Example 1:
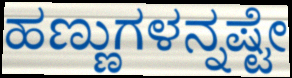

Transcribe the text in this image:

ಹಣ್ಣುಗಳನ್ನಷ್ಟೇ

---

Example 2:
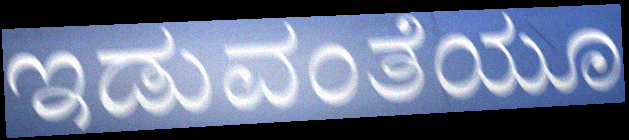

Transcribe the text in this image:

ಇಡುವಂತೆಯೂ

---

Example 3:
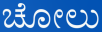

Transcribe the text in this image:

ಚೋಲು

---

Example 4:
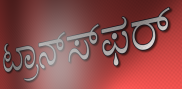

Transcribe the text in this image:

ಟ್ರಾನ್ಸ್‍ಫರ್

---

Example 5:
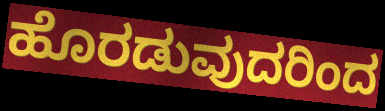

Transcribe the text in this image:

ಹೊರಡುವುದರಿಂದ